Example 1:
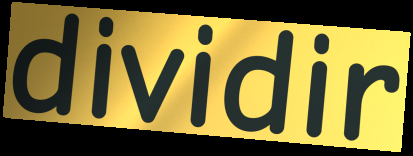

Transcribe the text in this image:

dividir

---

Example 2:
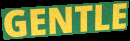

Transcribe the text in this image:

GENTLE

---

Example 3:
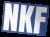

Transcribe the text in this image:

NKF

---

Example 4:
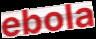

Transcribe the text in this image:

ebola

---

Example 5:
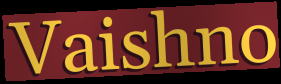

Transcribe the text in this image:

Vaishno